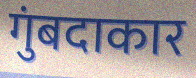
गुंबदाकार